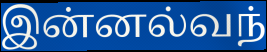
இன்னல்வந்